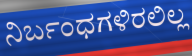
ನಿರ್ಬಂಧಗಳಿರಲಿಲ್ಲ